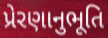
પ્રેરણાનુભૂતિ